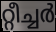
റ്റീച്ചർ